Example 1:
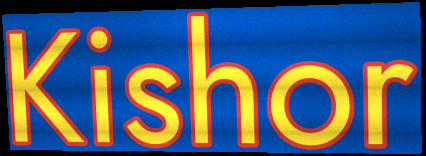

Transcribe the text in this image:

Kishor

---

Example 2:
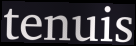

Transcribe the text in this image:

tenuis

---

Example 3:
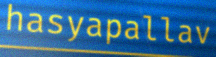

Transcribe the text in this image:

hasyapallav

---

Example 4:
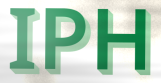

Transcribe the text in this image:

IPH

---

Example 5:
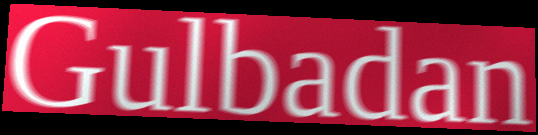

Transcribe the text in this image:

Gulbadan